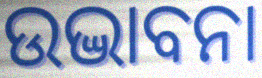
ଉଦ୍ଭାବନା